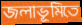
জলাভূমিতে